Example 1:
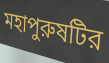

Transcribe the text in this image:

মহাপুরুষটির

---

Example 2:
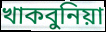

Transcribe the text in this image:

খাকবুনিয়া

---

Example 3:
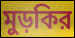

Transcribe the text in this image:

মুড়কির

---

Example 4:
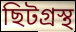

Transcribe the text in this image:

ছিটগ্রস্থ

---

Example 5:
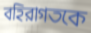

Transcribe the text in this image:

বহিরাগতকে